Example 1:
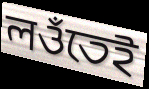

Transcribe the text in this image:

লওঁতেই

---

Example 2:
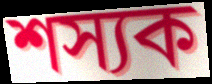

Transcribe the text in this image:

শস্যক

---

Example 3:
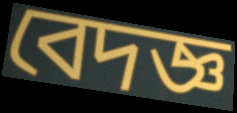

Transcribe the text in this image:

বেদজ্ঞ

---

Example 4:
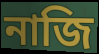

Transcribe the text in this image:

নাজি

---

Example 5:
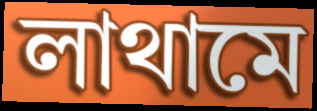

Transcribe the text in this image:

লাথামে